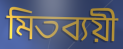
মিতব্যয়ী